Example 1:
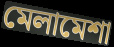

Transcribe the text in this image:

মেলামেশা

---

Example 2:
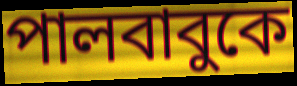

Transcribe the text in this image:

পালবাবুকে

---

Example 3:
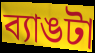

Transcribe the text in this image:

ব্যাঙটা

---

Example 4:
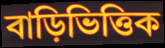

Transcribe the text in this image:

বাড়িভিত্তিক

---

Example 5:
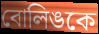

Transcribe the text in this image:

বোলিঙকে